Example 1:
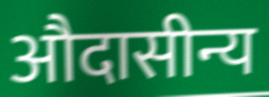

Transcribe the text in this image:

औदासीन्य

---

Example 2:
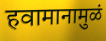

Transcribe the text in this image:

हवामानामुळं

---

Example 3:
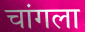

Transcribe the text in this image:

चांगला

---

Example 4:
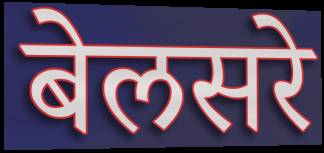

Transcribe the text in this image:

बेलसरे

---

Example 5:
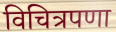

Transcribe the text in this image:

विचित्रपणा